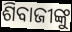
ଶିବାଜୀଙ୍କୁ